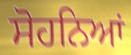
ਸੋਹਨਿਆਂ